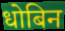
धोबिन